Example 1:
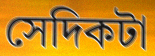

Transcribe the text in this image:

সেদিকটা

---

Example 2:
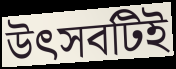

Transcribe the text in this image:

উৎসবটিই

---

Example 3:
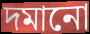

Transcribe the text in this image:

দমানো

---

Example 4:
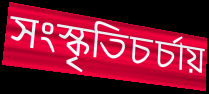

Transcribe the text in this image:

সংস্কৃতিচর্চায়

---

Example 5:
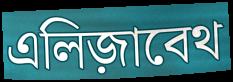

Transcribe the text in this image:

এলিজ়াবেথ